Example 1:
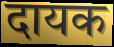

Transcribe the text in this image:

दायक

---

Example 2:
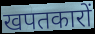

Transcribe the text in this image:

खपतकारों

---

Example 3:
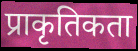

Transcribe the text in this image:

प्राकृतिकता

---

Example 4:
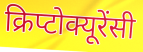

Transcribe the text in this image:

क्रिप्टोक्यूरेंसी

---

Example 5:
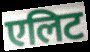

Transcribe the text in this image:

एलिट